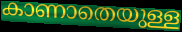
കാണാതെയുള്ള